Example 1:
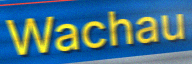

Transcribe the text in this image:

Wachau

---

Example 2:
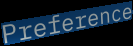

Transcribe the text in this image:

Preference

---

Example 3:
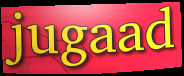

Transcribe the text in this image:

jugaad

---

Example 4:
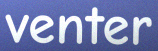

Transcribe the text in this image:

venter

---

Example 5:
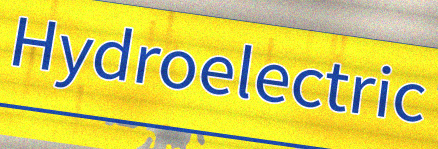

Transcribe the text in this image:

Hydroelectric